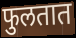
फुलतात